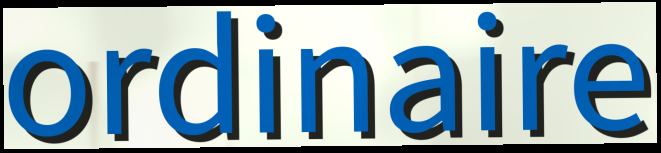
ordinaire